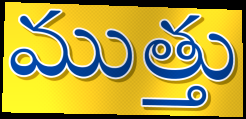
ముత్తు